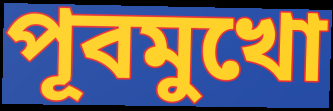
পূবমুখো